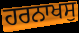
ਹਰਨਾਖਸੁ